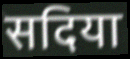
सदिया